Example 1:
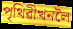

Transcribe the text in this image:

পৃথিৱীখনলৈ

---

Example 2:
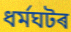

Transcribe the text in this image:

ধৰ্মঘটৰ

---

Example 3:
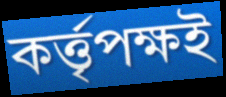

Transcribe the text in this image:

কৰ্ত্তৃপক্ষই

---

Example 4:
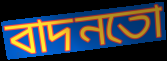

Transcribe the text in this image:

বাদনতো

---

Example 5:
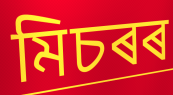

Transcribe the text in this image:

মিচৰৰ